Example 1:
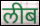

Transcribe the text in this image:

लीब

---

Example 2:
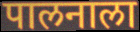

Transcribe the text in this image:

पालनाला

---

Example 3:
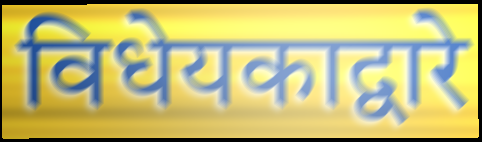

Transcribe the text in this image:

विधेयकाद्वारे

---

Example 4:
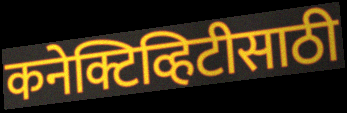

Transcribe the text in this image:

कनेक्टिव्हिटीसाठी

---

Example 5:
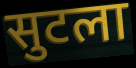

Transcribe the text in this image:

सुटला